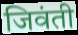
जिवंती